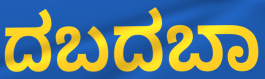
ದಬದಬಾ